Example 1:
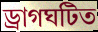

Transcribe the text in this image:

ড্রাগঘটিত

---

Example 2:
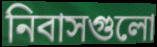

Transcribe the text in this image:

নিবাসগুলো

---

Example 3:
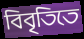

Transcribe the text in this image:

বিবৃতিতে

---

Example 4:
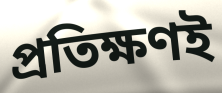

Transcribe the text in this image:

প্রতিক্ষণই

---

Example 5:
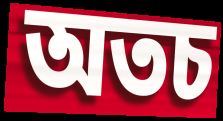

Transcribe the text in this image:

অতচ